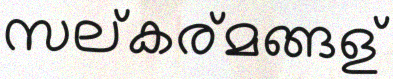
സല്കര്മങ്ങള്